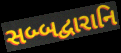
સબ્બદ્વારાનિ